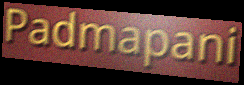
Padmapani